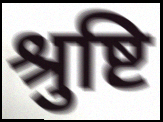
श्रुष्टि